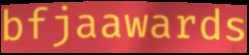
bfjaawards